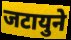
जटायुने